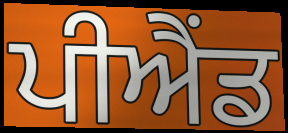
ਪੀਐਂਡ